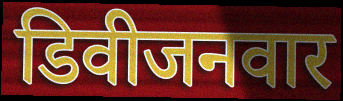
डिवीजनवार